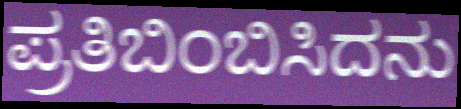
ಪ್ರತಿಬಿಂಬಿಸಿದನು